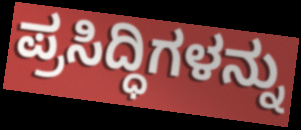
ಪ್ರಸಿದ್ಧಿಗಳನ್ನು